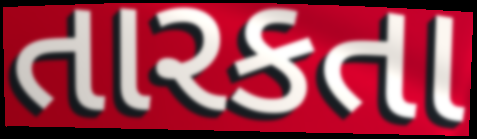
તારકતા